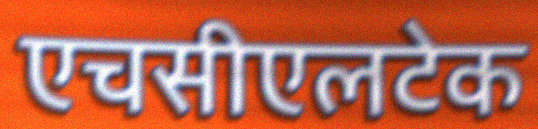
एचसीएलटेक